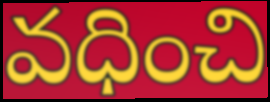
వధించి